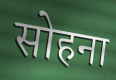
सोहना